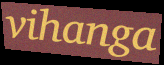
vihanga